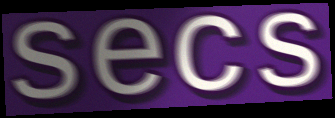
secs